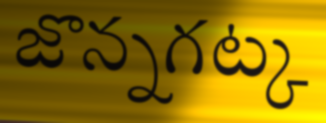
జొన్నగట్క